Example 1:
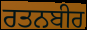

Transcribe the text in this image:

ਰਤਨਬੀਰ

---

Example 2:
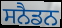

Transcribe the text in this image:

ਸਨੈਡਨ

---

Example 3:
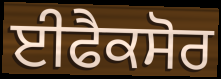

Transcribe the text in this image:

ਈਫੈਕਸੋਰ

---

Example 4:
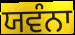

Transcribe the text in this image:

ਯਵੰਨਾ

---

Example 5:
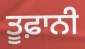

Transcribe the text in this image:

ਤੂਫ਼ਾਨੀ